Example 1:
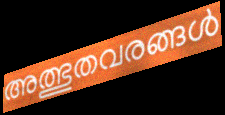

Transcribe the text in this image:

അത്ഭുതവരങ്ങൾ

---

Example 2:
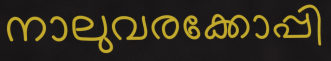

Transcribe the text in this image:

നാലുവരക്കോപ്പി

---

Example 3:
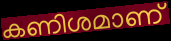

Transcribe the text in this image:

കണിശമാണ്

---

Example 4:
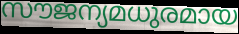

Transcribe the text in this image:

സൗജന്യമധുരമായ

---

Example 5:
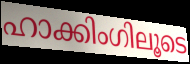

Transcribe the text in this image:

ഹാക്കിംഗിലൂടെ